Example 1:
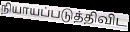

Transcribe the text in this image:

நியாயப்படுத்திவிட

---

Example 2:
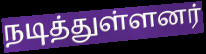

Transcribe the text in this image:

நடித்துள்ளனர்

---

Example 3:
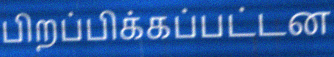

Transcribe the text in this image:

பிறப்பிக்கப்பட்டன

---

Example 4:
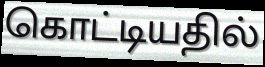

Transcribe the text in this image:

கொட்டியதில்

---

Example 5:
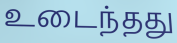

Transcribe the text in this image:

உடைந்தது